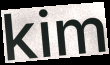
kim